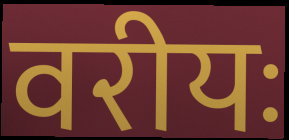
वरीयः